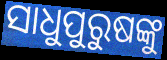
ସାଧୁପୁରୁଷଙ୍କୁ